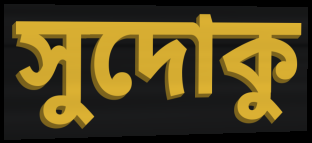
সুদোকু